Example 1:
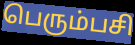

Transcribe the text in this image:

பெரும்பசி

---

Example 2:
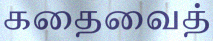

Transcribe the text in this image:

கதைவைத்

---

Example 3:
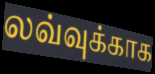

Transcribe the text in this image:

லவ்வுக்காக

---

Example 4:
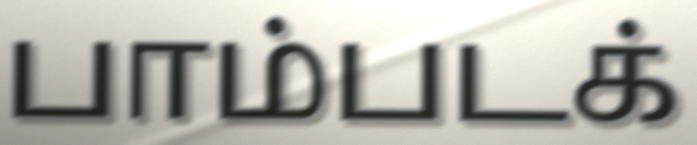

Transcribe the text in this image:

பாம்படக்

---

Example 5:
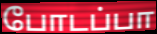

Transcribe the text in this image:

போடப்பா